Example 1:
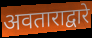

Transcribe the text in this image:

अवताराद्वारे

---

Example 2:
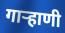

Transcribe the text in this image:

गार्‍हाणी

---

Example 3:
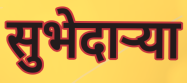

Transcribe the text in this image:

सुभेदाऱ्या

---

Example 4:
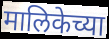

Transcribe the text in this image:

मालिकेच्या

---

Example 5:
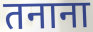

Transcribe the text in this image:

तनाना